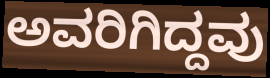
ಅವರಿಗಿದ್ದವು